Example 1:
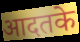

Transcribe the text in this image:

आदतके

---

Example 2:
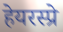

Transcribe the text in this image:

हेयरस्प्रे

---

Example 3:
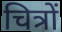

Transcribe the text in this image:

चित्रों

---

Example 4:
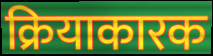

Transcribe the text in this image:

क्रियाकारक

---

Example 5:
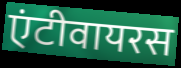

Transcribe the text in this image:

एंटीवायरस